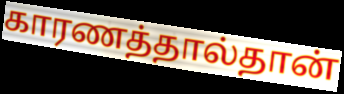
காரணத்தால்தான்